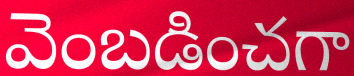
వెంబడించగా